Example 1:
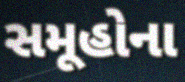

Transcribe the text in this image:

સમૂહોના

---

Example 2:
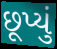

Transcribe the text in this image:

છૂપ્યું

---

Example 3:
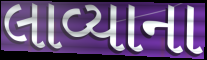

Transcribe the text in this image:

લાવ્યાના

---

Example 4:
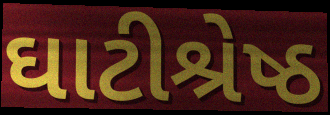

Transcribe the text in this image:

ઘાટીશ્રેષ્ઠ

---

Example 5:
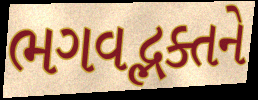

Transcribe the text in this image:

ભગવદ્ભક્તને